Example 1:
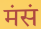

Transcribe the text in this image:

मंसं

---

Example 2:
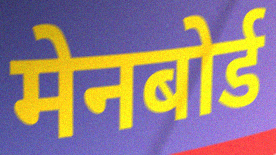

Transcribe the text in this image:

मेनबोर्ड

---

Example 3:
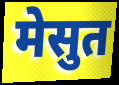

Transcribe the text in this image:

मेसुत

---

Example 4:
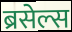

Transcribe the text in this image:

ब्रसेल्स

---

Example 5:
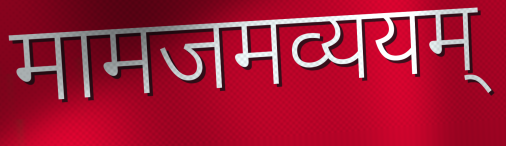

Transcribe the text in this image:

मामजमव्ययम्